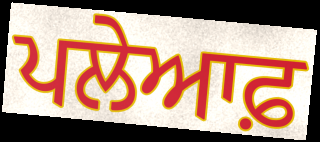
ਪਲੇਆਫ਼